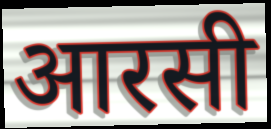
आरसी